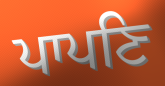
ਪਾਪਣਿ